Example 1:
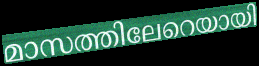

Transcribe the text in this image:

മാസത്തിലേറെയായി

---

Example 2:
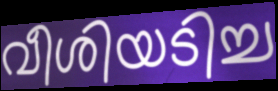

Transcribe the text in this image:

വീശിയടിച്ച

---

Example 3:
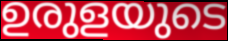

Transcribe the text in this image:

ഉരുളയുടെ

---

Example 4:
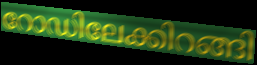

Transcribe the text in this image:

റോഡിലേക്കിറങ്ങി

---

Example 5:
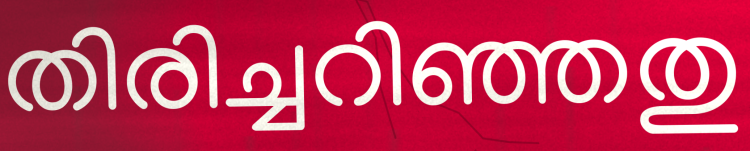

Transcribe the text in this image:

തിരിച്ചറിഞ്ഞതു